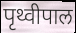
पृथ्वीपाल